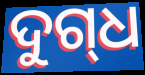
ଦୁଗ୍‌ଧ